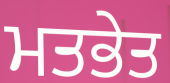
ਮਤਭੇਤ